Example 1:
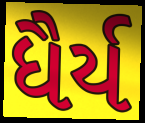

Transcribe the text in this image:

ધૈર્ય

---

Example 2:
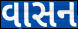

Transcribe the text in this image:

વાસન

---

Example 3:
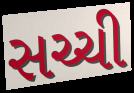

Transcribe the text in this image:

સચ્ચી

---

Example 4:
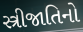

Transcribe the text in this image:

સ્ત્રીજાતિનો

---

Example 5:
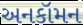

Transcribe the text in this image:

અનકૉમન